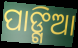
ପାଙ୍ଗିଆ